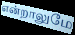
என்றாலுமே